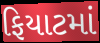
ફિયાટમાં